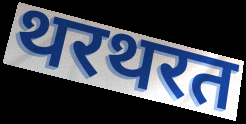
थरथरत